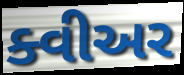
ક્વીઅર